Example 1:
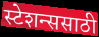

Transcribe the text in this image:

स्टेशन्ससाठी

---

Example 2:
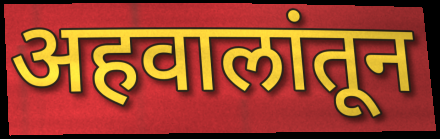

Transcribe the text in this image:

अहवालांतून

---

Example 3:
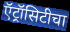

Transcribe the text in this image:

ऍट्रॉसिटीचा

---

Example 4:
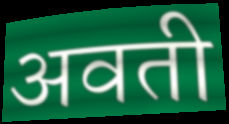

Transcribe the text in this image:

अवती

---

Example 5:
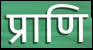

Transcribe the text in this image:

प्राणि